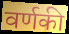
वर्णकी